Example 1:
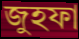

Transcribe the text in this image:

জুহফা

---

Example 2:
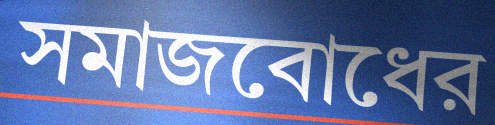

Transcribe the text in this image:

সমাজবোধের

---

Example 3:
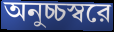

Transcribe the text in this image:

অনুচ্চস্বরে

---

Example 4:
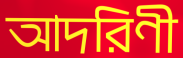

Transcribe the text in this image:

আদরিণী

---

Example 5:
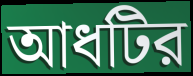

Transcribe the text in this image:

আধটির